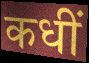
कधीं